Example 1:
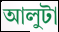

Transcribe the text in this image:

আলুটা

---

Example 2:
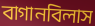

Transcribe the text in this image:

বাগানবিলাস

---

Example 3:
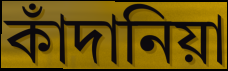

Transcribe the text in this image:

কাঁদানিয়া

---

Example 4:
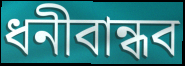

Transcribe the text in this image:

ধনীবান্ধব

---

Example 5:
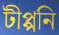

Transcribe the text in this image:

টীপ্পনি